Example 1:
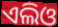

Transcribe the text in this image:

ଏଲିଓ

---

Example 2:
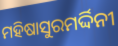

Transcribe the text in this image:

ମହିଷାସୁରମର୍ଦ୍ଦିନୀ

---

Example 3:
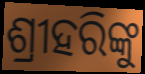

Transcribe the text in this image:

ଶ୍ରୀହରିଙ୍କୁ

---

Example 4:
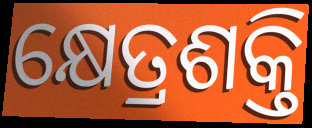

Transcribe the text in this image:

କ୍ଷେତ୍ରଶକ୍ତି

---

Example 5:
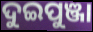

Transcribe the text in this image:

ଦୁଇପୁଞ୍ଜା